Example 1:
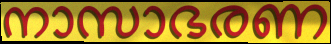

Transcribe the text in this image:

നാസാഭരണ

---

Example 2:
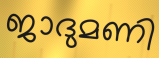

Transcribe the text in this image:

ജാദുമണി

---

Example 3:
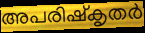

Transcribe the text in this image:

അപരിഷ്കൃതർ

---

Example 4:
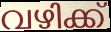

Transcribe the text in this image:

വഴിക്ക്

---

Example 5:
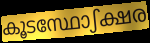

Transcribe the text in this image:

കൂടസ്ഥോഽക്ഷര